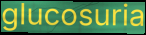
glucosuria